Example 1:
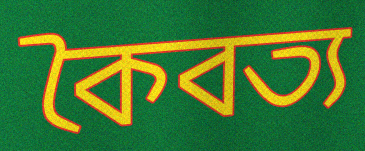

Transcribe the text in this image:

কৈবত্য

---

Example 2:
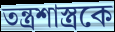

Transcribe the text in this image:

তন্ত্রশাস্ত্রকে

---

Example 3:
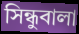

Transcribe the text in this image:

সিন্ধুবালা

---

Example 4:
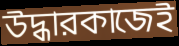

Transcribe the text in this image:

উদ্ধারকাজেই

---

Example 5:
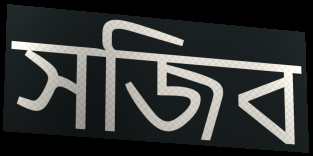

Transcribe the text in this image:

সজিব